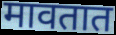
मावतात